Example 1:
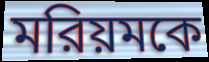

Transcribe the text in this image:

মরিয়মকে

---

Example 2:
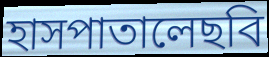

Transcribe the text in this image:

হাসপাতালেছবি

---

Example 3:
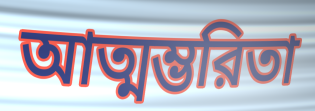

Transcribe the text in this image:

আত্মম্ভরিতা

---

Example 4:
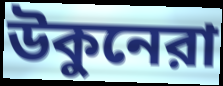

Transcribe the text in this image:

উকুনেরা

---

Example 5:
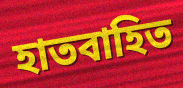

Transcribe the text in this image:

হাতবাহিত